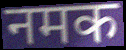
नमक